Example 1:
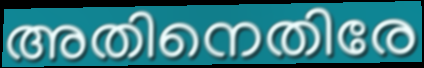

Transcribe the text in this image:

അതിനെതിരേ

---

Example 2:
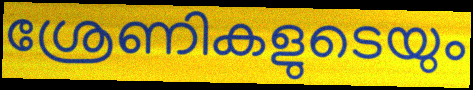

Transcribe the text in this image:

ശ്രേണികളുടെയും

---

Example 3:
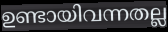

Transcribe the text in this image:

ഉണ്ടായിവന്നതല്ല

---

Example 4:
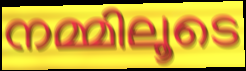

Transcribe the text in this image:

നമ്മിലൂടെ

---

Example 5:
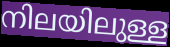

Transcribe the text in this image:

നിലയിലുള്ള